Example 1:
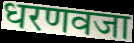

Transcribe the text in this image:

धरणवजा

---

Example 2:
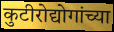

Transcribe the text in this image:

कुटीरोद्योगांच्या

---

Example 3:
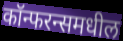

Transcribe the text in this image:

कॉन्फरन्समधील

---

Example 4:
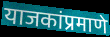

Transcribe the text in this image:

याजकांप्रमाणे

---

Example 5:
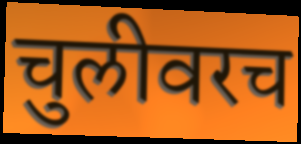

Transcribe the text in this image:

चुलीवरच